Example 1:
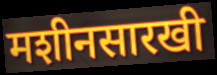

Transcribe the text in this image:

मशीनसारखी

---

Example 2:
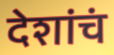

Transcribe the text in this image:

देशांचं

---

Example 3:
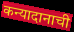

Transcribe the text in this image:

कन्यादानाची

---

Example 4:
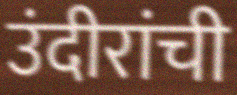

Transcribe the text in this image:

उंदीरांची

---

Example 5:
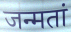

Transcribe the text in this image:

जन्मतां